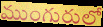
ముంగురులో